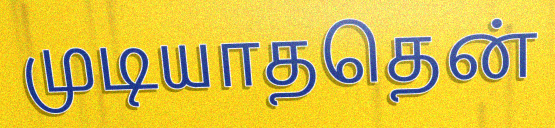
முடியாததென்